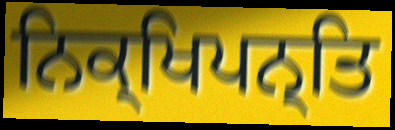
ਨਿਕ੍ਖਿਪਨ੍ਤਿ